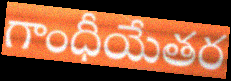
గాంధీయేతర